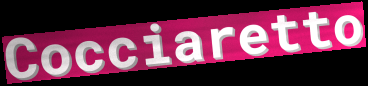
Cocciaretto